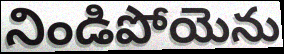
నిండిపోయెను